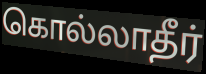
கொல்லாதீர்